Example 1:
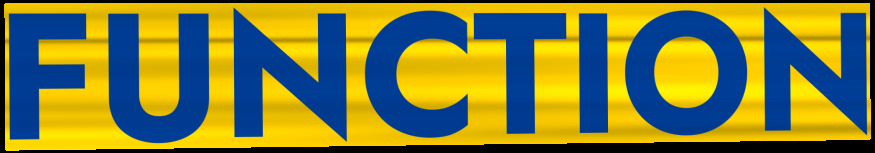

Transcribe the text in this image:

FUNCTION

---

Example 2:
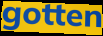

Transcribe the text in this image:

gotten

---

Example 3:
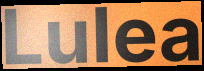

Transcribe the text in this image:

Lulea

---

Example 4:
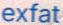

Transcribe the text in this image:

exfat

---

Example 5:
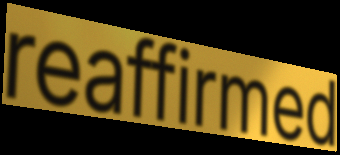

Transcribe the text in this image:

reaffirmed